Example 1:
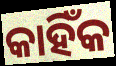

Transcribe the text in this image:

କାହିଁକ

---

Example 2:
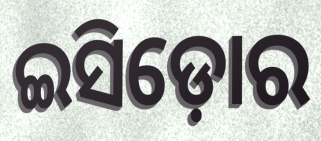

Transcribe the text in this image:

ଇସିଡ଼ୋର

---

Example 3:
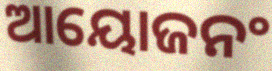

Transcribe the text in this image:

ଆୟୋଜନଂ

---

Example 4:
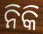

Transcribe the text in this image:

ନିକି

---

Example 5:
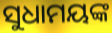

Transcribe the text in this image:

ସୁଧାମୟଙ୍କ